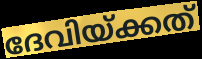
ദേവിയ്ക്കത്